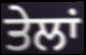
ਤੇਲਾਂ